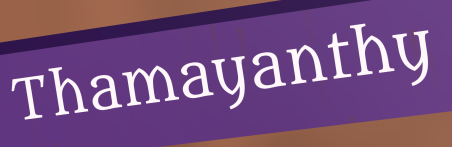
Thamayanthy